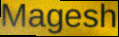
Magesh